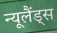
न्यूलैंड्स